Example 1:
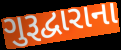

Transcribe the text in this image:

ગુરૂદ્વારાના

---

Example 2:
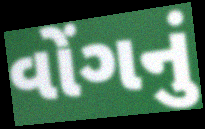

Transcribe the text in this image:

વોંગનું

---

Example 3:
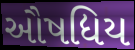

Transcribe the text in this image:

ઔષદ્યિય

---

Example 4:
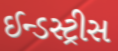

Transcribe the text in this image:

ઈન્ડસ્ટ્રીસ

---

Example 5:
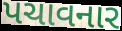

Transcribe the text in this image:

પચાવનાર